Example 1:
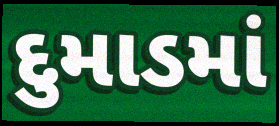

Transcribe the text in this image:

દુમાડમાં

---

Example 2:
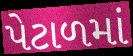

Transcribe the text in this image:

પેટાળમાં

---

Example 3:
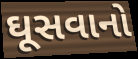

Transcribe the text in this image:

ઘૂસવાનો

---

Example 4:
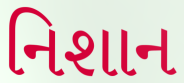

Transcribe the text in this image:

નિશાન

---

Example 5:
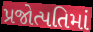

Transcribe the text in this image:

પ્રજોત્પતિમાં